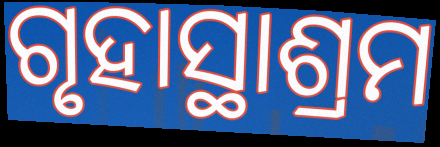
ଗୃହାସ୍ଥାଶ୍ରମ